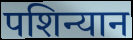
पशिन्यान